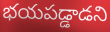
భయపడ్డాడని